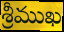
శ్రీముఖ